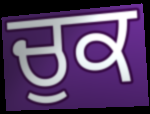
ਚੁਕ